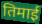
तिमाई